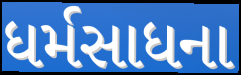
ધર્મસાધના